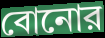
বোনোর